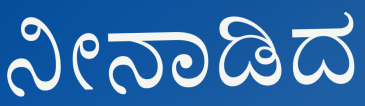
ನೀನಾಡಿದ